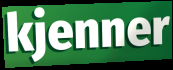
kjenner